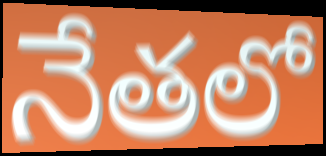
నేతలో